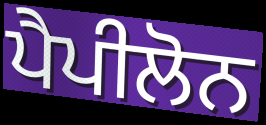
ਪੈਪੀਲੋਨ